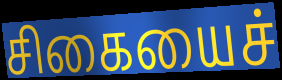
சிகையைச்